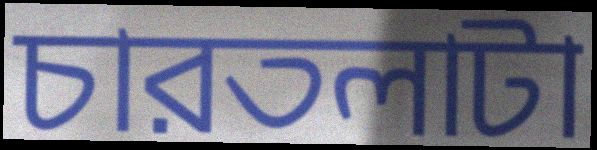
চারতলাটা